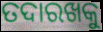
ତଦାରଖକୁ